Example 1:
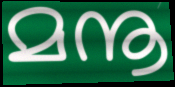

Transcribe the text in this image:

മനൂ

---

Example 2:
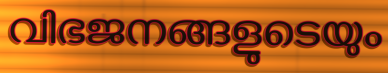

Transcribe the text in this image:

വിഭജനങ്ങളുടെയും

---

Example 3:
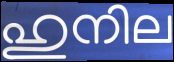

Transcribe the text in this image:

ഹുനില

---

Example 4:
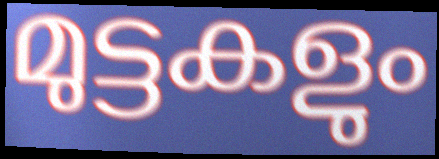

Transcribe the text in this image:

മുട്ടകളും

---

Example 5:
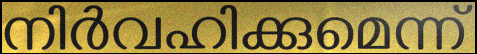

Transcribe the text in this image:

നിർവഹിക്കുമെന്ന്